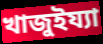
খাজুইয্যা